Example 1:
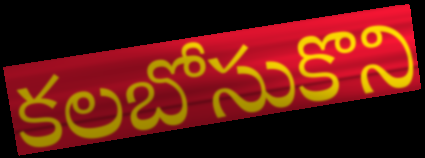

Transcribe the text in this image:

కలబోసుకొని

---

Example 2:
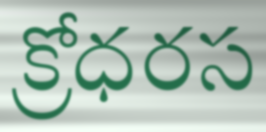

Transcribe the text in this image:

క్రోధరస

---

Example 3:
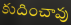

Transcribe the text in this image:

కుదించావు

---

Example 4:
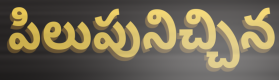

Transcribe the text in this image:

పిలుపునిచ్చిన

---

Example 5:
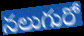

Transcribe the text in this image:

నలుగురో